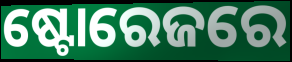
ଷ୍ଟୋରେଜରେ